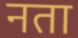
नता